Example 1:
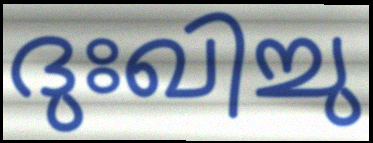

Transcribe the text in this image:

ദുഃഖിച്ചു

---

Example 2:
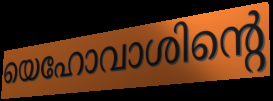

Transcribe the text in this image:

യെഹോവാശിന്റെ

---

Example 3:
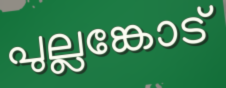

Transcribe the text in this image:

പുല്ലങ്കോട്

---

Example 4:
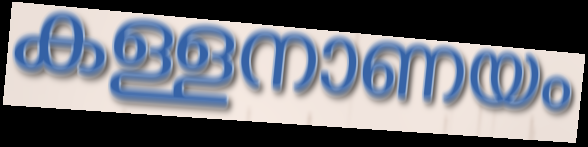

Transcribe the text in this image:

കള്ളനാണയം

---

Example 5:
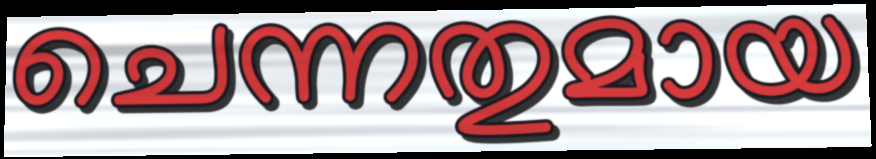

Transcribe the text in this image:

ചെന്നതുമായ